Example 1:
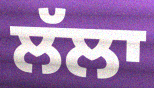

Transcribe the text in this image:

ਲੱਲਾ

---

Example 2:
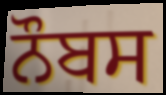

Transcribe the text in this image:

ਨੌਬਸ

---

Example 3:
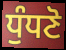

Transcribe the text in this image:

ਧੁੰਧਣੋ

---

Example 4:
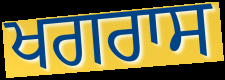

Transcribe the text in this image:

ਖਗਰਾਸ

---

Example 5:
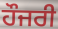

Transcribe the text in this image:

ਹੌਜਰੀ